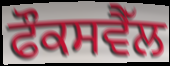
ਫੌਕਸਵੈੱਲ